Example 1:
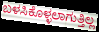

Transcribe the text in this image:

ಬಳಸಿಕೊಳ್ಳಲಾಗುತ್ತಿಲ್ಲ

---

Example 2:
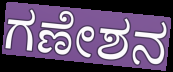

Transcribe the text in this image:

ಗಣೇಶನ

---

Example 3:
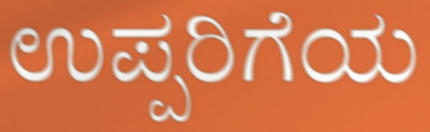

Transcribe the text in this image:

ಉಪ್ಪರಿಗೆಯ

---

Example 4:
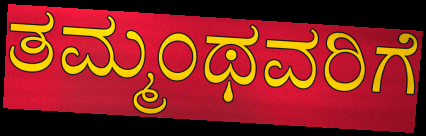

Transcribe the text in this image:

ತಮ್ಮಂಥವರಿಗೆ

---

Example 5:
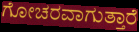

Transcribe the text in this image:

ಗೋಚರವಾಗುತ್ತಾರೆ